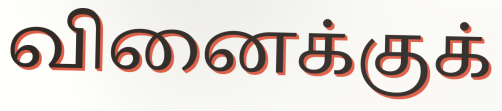
வினைக்குக்